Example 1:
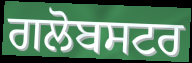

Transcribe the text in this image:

ਗਲੋਬਸਟਰ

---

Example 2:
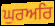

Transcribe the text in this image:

ਘੁਰਅਰਿ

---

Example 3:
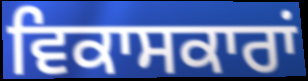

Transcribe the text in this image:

ਵਿਕਾਸਕਾਰਾਂ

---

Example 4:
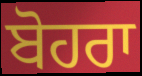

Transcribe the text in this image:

ਬੋਹਰਾ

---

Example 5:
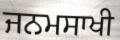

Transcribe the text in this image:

ਜਨਮਸਾਖੀ